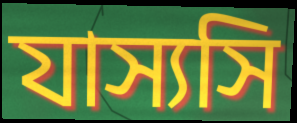
যাস্যসি